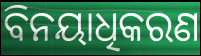
ବିନୟାଧିକରଣ